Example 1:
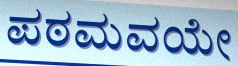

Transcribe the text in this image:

ಪಠಮವಯೇ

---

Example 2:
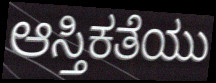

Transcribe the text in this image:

ಆಸ್ತಿಕತೆಯು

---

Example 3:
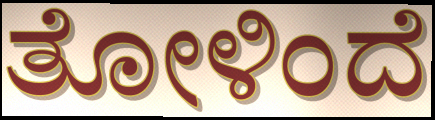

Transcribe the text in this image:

ತೋಳಿಂದೆ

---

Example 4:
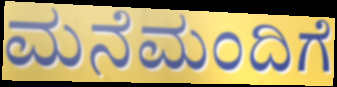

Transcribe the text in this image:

ಮನೆಮಂದಿಗೆ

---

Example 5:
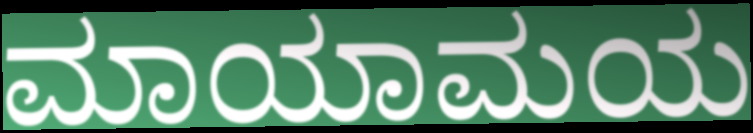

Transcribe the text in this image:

ಮಾಯಾಮಯ